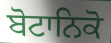
ਬੋਟਾਨਿਕੋ